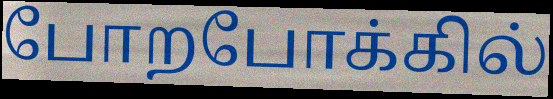
போறபோக்கில்